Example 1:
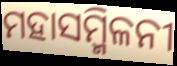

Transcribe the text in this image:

ମହାସମ୍ମିଳନୀ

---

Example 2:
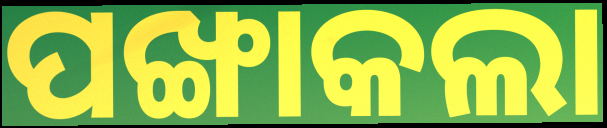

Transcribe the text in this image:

ପଙ୍ଖାକଲା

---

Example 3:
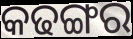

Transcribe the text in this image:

କଢଙ୍ଗର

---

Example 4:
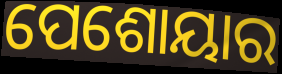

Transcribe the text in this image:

ପେଶୋୟାର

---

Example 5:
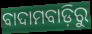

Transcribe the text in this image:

ବାଦାମବାଡ଼ିରୁ